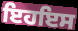
ਇਹਇਸ